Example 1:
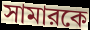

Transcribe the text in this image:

সামারকে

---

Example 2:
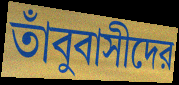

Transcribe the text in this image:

তাঁবুবাসীদের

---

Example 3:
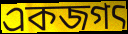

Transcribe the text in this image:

একজগৎ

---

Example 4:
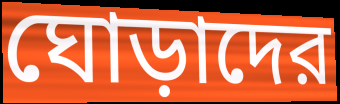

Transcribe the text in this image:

ঘোড়াদের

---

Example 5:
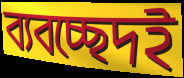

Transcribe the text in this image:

ব্যবচ্ছেদই